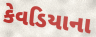
કેવડિયાના